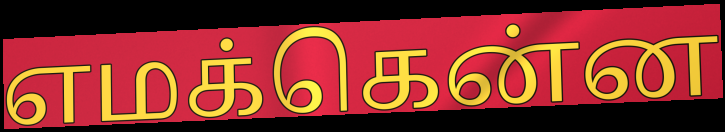
எமக்கென்ன